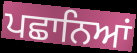
ਪਛਾਨਿਆਂ